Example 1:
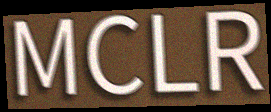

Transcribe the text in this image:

MCLR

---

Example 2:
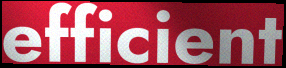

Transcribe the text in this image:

efficient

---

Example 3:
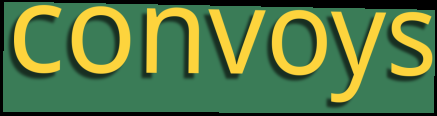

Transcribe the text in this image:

convoys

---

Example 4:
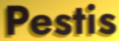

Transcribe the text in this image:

Pestis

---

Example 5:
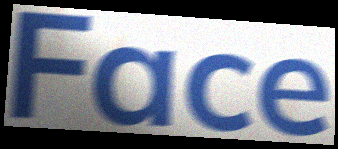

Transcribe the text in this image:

Face